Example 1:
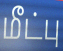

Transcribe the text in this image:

மீட்பு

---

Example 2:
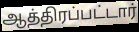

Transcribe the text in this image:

ஆத்திரப்பட்டார்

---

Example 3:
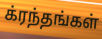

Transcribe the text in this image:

க்ரந்தங்கள்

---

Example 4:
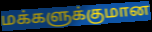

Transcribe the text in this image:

மக்களுக்குமான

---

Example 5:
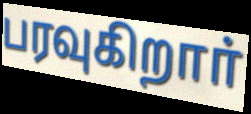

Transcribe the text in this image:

பரவுகிறார்